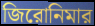
জিরোনিমার